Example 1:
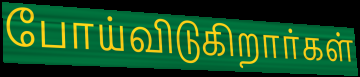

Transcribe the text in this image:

போய்விடுகிறார்கள்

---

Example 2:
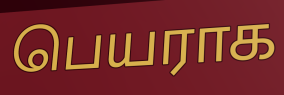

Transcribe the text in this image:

பெயராக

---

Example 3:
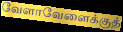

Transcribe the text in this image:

வேளாவேளைக்குத்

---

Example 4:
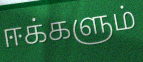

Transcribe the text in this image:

ஈக்களும்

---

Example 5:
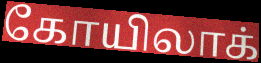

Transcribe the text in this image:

கோயிலாக்